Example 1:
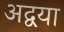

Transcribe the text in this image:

अद्वया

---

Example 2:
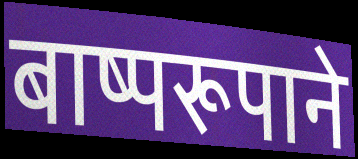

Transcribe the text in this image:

बाष्परूपाने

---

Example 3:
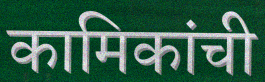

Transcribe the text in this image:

कामिकांची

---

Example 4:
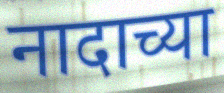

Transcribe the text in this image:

नादाच्या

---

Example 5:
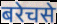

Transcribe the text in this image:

बरेचसे